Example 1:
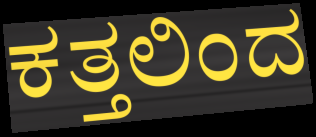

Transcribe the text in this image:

ಕತ್ತಲಿಂದ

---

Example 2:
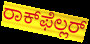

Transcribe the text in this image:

ರಾಕ್‌ಫೆಲ್ಲರ್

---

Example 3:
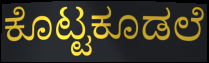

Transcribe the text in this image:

ಕೊಟ್ಟಕೂಡಲೆ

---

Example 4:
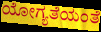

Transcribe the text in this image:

ಯೋಗ್ಯತೆಯಂತೆ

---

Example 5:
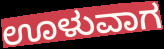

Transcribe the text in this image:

ಊಳುವಾಗ